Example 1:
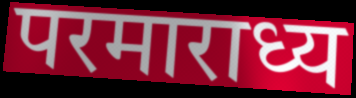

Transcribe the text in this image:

परमाराध्य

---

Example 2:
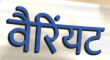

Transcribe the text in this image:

वैरिंयट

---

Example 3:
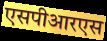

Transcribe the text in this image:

एसपीआरएस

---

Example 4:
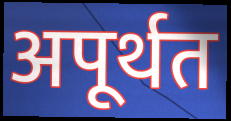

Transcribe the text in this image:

अपूर्थत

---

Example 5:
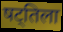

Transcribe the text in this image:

षट्तिला